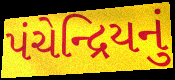
પંચેન્દ્રિયનું